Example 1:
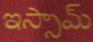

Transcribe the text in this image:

ఇస్సామ్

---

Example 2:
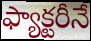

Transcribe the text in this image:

ఫ్యాక్టరీనే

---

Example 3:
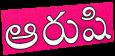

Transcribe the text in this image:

ఆరుషి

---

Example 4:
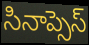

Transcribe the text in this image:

సినాప్సెస్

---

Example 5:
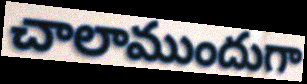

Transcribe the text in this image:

చాలాముందుగా